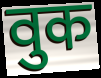
वुक